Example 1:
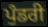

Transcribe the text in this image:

ਪੁੰਡਰੀ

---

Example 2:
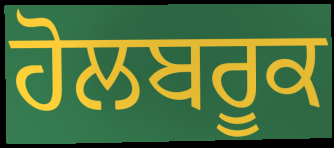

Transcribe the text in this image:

ਹੋਲਬਰੂਕ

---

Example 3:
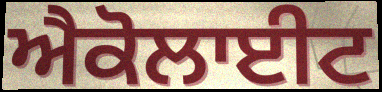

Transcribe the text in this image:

ਐਕੋਲਾਈਟ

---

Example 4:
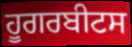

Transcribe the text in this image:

ਹੂਗਰਬੀਟਸ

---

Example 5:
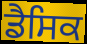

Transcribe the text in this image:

ਡੈਸਿਕ